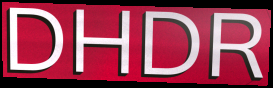
DHDR